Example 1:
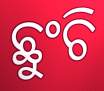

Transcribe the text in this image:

ଛୁଂଚି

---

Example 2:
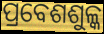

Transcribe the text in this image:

ପ୍ରବେଶଶୁଳ୍କ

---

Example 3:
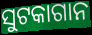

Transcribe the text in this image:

ସୁଟକାଗାନ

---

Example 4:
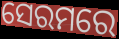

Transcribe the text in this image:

ସେରମରେ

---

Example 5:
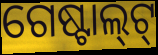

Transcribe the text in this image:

ଗେଷ୍ଟାଲ୍‌ଟ୍